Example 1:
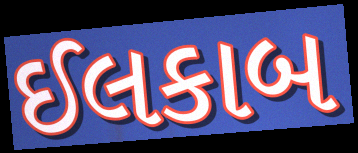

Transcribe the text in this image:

ઈલકાબ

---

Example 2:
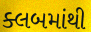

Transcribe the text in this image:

ક્લબમાંથી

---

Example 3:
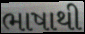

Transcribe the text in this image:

ભાષાથી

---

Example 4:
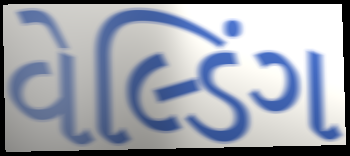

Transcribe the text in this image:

વેલ્ડિંગ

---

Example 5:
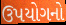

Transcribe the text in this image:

ઉપયોગનો